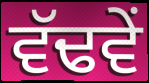
ਵੱਢਵੇਂ